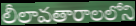
లీలావతారాలలోని